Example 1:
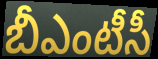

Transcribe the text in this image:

బీఎంటీసీ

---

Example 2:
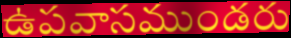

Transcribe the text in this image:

ఉపవాసముండరు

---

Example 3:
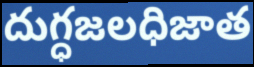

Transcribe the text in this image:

దుగ్ధజలధిజాత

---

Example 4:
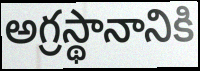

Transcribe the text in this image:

అగ్రస్థానానికి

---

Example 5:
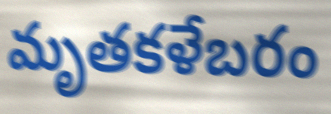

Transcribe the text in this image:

మృతకళేబరం